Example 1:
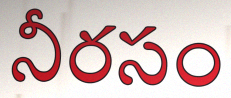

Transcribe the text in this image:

నీరసం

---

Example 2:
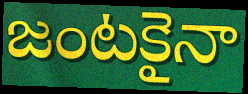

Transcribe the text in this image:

జంటకైనా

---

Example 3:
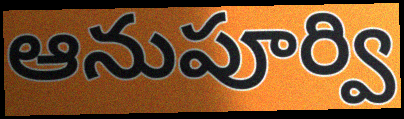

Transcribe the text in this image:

ఆనుపూర్వి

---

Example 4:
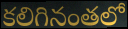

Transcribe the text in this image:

కలిగినంతలో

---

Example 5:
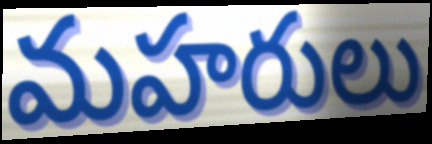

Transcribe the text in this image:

మహరులు